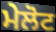
ਮੇਲੋਟ